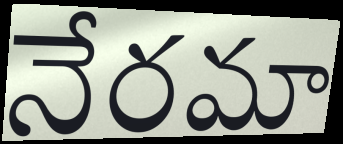
నేరమా